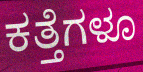
ಕತ್ತೆಗಳೂ